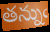
తన్నుఁ